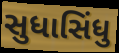
સુધાસિંધુ